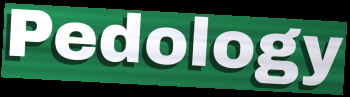
Pedology